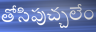
తోసిపుచ్చలేం